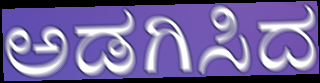
ಅಡಗಿಸಿದ